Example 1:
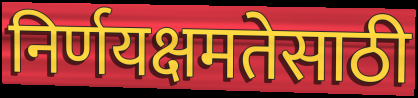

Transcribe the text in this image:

निर्णयक्षमतेसाठी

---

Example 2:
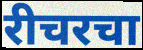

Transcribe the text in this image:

रीचरचा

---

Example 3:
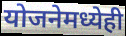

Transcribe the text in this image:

योजनेमध्येही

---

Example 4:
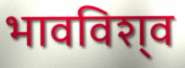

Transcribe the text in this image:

भावविश्व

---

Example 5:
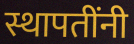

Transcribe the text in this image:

स्थापतींनी